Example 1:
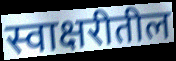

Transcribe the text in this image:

स्वाक्षरीतील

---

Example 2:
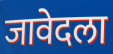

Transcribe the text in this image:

जावेदला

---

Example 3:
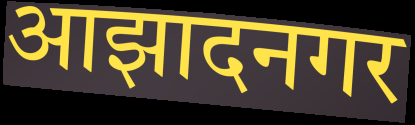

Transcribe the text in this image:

आझादनगर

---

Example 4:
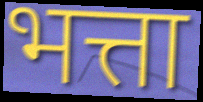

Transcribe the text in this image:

भत्ता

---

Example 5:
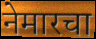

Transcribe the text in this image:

नेमारचा